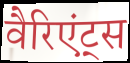
वैरिएंट्स